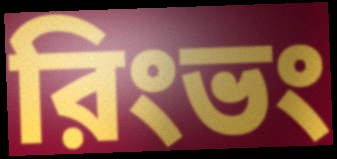
রিংভং